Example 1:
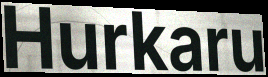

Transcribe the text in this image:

Hurkaru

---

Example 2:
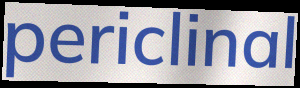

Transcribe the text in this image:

periclinal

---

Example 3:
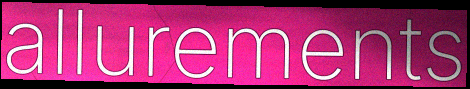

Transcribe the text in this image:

allurements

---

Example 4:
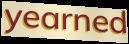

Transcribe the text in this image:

yearned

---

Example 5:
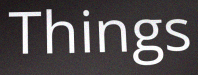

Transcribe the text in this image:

Things